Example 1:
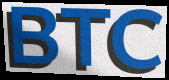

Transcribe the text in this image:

BTC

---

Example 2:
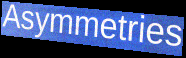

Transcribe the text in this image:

Asymmetries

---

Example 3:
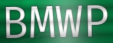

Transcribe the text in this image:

BMWP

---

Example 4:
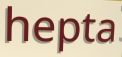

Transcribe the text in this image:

hepta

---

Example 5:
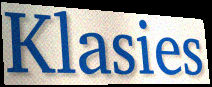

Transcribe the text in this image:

Klasies